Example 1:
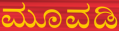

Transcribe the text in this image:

ಮೂವಡಿ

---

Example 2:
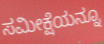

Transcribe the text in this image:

ಸಮೀಕ್ಷೆಯನ್ನೂ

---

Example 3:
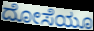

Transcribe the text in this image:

ದೋಸೆಯೂ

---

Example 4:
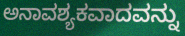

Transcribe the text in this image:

ಅನಾವಶ್ಯಕವಾದವನ್ನು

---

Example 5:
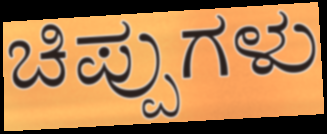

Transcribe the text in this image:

ಚಿಪ್ಪುಗಳು